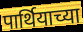
पार्थियाच्या